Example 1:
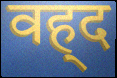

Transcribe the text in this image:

वह्द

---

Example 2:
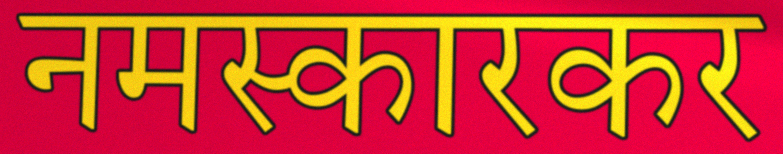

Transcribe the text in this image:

नमस्कारकर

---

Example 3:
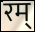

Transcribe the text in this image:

रम्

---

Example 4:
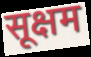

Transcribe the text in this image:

सूक्षम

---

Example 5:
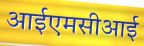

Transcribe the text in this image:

आईएमसीआई